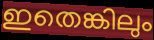
ഇതെങ്കിലും